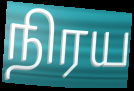
நிரய